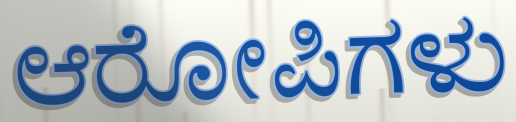
ಆರೋಪಿಗಳು